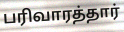
பரிவாரத்தார்